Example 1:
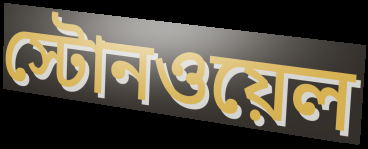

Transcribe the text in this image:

স্টোনওয়েল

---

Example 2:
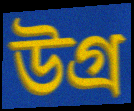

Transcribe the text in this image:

উগ্র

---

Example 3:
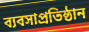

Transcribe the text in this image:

ব্যবসাপ্রতিষ্ঠান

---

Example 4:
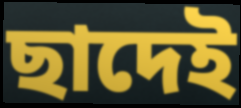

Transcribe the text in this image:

ছাদেই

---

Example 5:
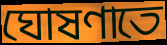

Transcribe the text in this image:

ঘোষণাতে